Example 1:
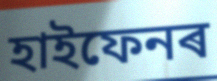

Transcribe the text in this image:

হাইফেনৰ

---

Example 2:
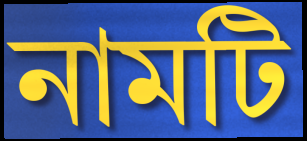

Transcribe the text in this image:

নামটি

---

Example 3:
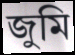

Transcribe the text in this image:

জুমি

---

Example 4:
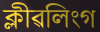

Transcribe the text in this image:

ক্লীৱলিংগ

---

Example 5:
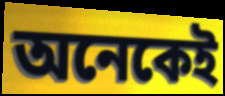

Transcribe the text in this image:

অনেকেই